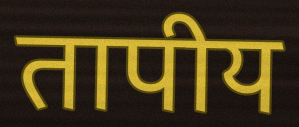
तापीय